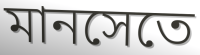
মানসেতে